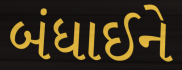
બંધાઈને